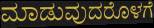
ಮಾಡುವುದರೊಳಗೆ